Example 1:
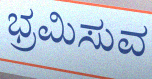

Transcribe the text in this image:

ಭ್ರಮಿಸುವ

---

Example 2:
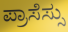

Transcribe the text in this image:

ಪ್ರಾಸೆಸ್ಸು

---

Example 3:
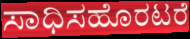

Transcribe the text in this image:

ಸಾಧಿಸಹೊರಟರೆ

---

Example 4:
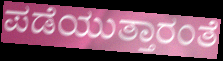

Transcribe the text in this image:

ಪಡೆಯುತ್ತಾರಂತೆ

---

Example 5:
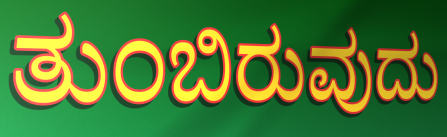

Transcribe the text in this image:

ತುಂಬಿರುವುದು